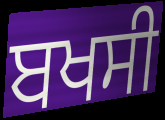
ਬਖਸੀ